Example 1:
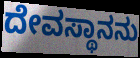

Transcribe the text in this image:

ದೇವಸ್ಥಾನನು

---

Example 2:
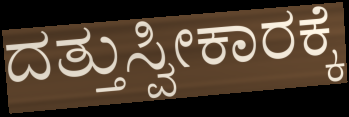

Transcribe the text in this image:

ದತ್ತುಸ್ವೀಕಾರಕ್ಕೆ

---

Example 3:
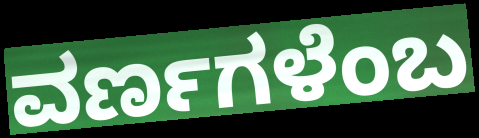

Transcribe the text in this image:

ವರ್ಣಗಳೆಂಬ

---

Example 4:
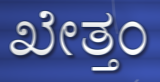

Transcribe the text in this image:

ಖೇತ್ತಂ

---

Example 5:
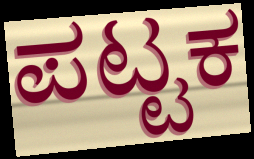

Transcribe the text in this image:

ಪಟ್ಟಕ